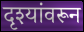
दृश्यांवरून